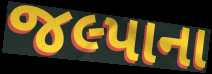
જલ્પાના